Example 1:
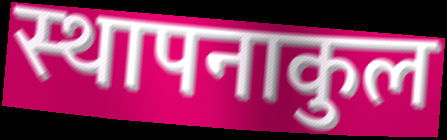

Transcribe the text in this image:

स्थापनाकुल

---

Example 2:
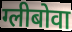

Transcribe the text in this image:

ग्लीबोवा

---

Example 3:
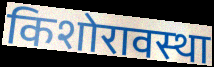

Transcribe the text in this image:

किशोरावस्था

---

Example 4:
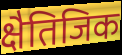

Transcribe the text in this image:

क्षैतिजिक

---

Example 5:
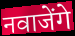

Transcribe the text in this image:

नवाजेंगे